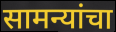
सामन्यांचा